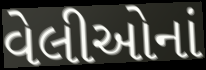
વેલીઓનાં